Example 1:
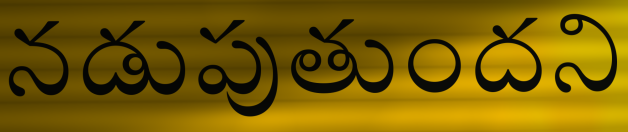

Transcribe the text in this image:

నడుపుతుందని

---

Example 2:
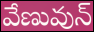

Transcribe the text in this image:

వేణువున్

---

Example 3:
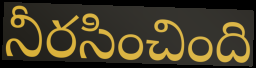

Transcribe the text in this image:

నీరసించింది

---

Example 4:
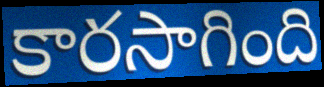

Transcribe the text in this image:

కారసాగింది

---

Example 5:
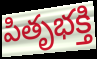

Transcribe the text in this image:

పితృభక్తి